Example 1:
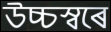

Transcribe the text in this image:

উচ্চস্বৰে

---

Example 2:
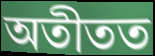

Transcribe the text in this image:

অতীতত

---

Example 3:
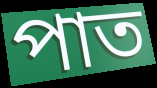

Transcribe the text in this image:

পাত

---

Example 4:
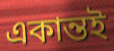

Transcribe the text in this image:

একান্তই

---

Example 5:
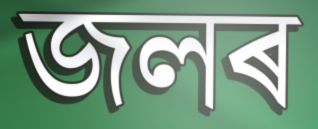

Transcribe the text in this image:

জলৰ